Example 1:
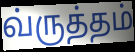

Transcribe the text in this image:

வ்ருத்தம்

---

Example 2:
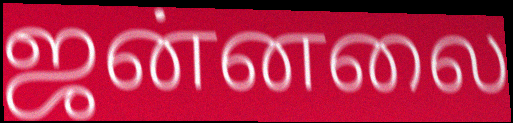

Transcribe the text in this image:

ஜன்னலை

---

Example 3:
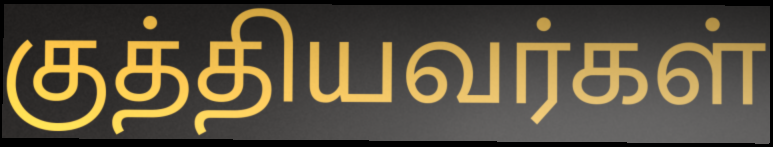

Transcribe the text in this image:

குத்தியவர்கள்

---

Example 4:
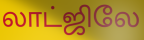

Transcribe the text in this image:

லாட்ஜிலே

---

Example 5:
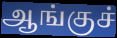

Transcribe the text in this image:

ஆங்குச்